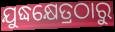
ଯୁଦ୍ଧକ୍ଷେତ୍ରଠାରୁ